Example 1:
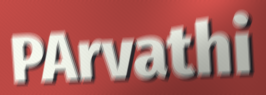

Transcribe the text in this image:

PArvathi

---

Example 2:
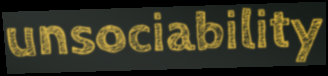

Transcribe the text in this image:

unsociability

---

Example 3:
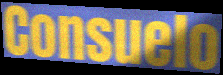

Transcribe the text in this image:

Consuelo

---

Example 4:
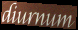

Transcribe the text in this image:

diurnum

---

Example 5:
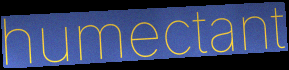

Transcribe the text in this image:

humectant